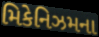
મિકેનિઝમના